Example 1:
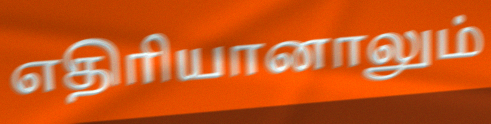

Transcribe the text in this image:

எதிரியானாலும்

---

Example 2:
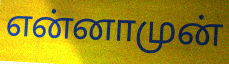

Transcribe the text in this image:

என்னாமுன்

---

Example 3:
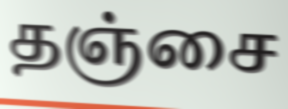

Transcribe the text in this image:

தஞ்சை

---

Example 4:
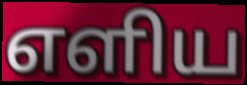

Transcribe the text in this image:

எளிய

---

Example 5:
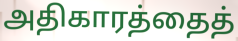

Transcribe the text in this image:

அதிகாரத்தைத்